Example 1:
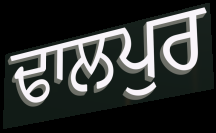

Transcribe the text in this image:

ਢਾਲਪੁਰ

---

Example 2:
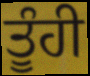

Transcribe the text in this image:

ਤੂੰਹੀ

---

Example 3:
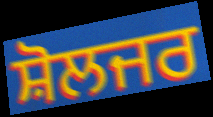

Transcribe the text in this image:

ਸ਼ੋਲਜਰ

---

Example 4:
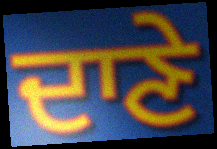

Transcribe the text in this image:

ਦਾਣੇ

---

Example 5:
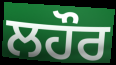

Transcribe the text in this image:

ਲਹੌਰ